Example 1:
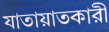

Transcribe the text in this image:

যাতায়াতকারী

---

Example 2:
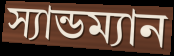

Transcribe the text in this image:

স্যান্ডম্যান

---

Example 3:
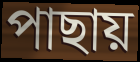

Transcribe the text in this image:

পাছায়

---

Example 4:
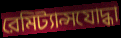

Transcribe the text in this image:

রেমিট্যান্সযোদ্ধা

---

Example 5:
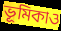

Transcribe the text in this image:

ভূমিকাও